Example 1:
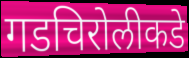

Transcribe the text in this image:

गडचिरोलीकडे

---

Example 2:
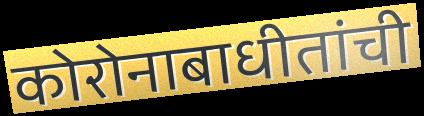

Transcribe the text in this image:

कोरोनाबाधीतांची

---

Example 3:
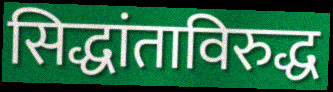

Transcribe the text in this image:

सिद्धांताविरुद्ध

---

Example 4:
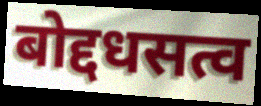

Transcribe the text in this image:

बोद्दधसत्व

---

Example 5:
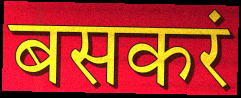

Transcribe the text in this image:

बसकरं